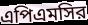
এপিএমসির